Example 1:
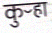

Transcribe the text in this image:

कुऱ्हा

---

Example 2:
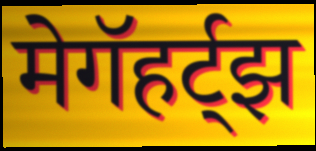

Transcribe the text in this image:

मेगॅहर्ट्झ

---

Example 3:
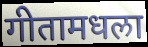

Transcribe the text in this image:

गीतामधला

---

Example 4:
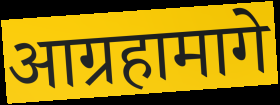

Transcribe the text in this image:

आग्रहामागे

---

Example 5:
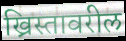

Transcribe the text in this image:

ख्रिस्तावरील